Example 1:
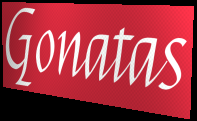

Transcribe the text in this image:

Gonatas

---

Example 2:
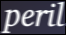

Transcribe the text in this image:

peril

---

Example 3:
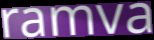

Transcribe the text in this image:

ramva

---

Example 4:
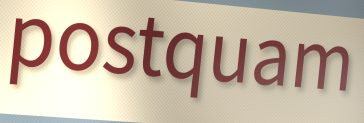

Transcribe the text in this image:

postquam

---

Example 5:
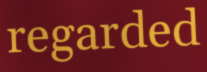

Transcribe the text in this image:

regarded